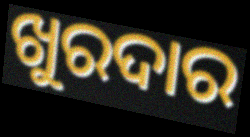
ଖୁରଦାର